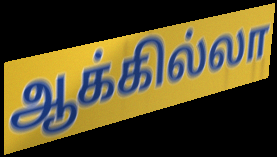
ஆக்கில்லா